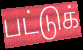
பட்டுக்